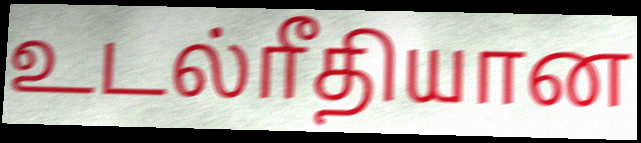
உடல்ரீதியான